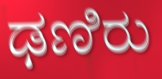
ಢಣಿರು